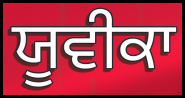
ਯੂਵੀਕਾ